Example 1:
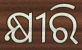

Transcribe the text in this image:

କ୍ଷୀରି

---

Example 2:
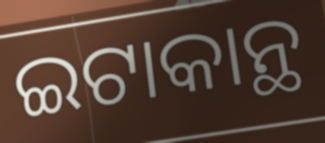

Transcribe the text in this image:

ଇଟାକାନ୍ଥ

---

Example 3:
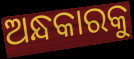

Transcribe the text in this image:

ଅନ୍ଧକାରକୁ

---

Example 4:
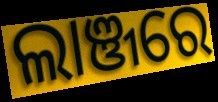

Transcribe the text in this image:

ଲାଞ୍ଜରେ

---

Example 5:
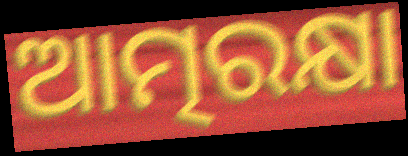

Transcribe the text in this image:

ଆତ୍ମରକ୍ଷା